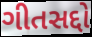
ગીતસદ્દો